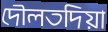
দৌলতদিয়া